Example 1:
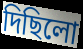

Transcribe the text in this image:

দিছিলো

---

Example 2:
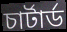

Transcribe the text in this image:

চার্টার্ড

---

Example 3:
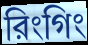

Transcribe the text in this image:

রিংগিং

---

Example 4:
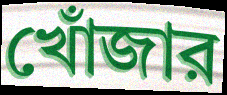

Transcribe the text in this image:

খোঁজার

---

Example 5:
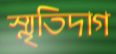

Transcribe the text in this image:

স্মৃতিদাগ